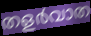
തളർവാത